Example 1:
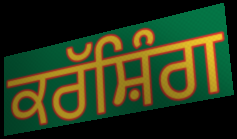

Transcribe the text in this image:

ਕਰੱਸ਼ਿੰਗ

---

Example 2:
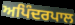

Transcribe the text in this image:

ਅਪਿੰਦਰਪਾਲ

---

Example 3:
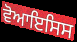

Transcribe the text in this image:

ਵੋਆਇਸਿਸ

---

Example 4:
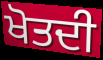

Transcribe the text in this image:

ਖੋਤਦੀ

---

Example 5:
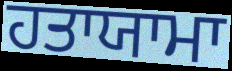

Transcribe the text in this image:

ਹਤਾਯਾਮਾ